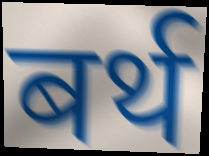
बर्थ